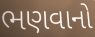
ભણવાનો